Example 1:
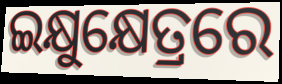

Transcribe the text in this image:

ଇକ୍ଷୁକ୍ଷେତ୍ରରେ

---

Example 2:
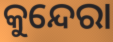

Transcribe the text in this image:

କୁନ୍ଦେରା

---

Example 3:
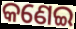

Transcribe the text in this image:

କଣେଇ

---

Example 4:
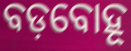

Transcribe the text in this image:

ବଡ଼ବୋହୂ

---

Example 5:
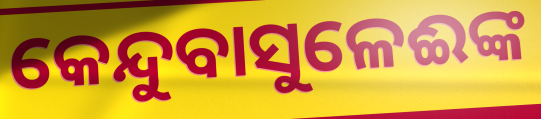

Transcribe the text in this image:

କେନ୍ଦୁବାସୁଳେଈଙ୍କ